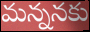
మన్ననకు